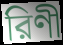
রিণী